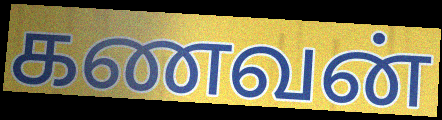
கணவன்